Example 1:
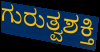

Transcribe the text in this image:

ಗುರುತ್ವಶಕ್ತಿ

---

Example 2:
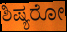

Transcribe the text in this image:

ಶಿಷ್ಯರೋ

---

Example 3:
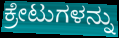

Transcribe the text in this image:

ಕ್ರೇಟುಗಳನ್ನು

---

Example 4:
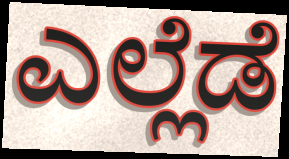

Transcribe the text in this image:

ಎಲ್ಲೆಡೆ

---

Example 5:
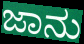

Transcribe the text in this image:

ಜಾನು